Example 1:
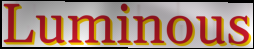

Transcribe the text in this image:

Luminous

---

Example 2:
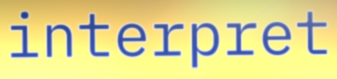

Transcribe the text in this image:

interpret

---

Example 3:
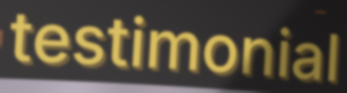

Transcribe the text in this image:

testimonial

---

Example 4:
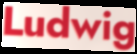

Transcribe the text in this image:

Ludwig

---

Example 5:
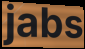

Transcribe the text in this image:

jabs